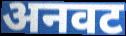
अनवट